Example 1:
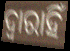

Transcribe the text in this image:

ଦ୍ୱାରାହିଁ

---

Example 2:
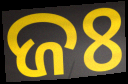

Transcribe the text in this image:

ଜଃ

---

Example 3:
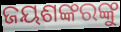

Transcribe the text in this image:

ଜୟଶଙ୍କରଙ୍କୁ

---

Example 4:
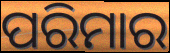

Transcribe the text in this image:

ପରିମାର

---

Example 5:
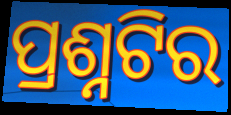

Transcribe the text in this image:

ପ୍ରଶ୍ନଟିର